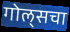
गोल्सचा